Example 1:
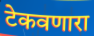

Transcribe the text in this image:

टेकवणारा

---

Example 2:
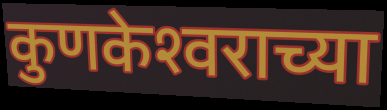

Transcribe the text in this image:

कुणकेश्वराच्या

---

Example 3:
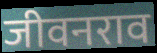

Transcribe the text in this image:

जीवनराव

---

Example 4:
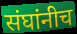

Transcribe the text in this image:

संघांनीच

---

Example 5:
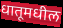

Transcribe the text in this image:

धातूमधील